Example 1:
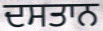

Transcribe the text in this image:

ਦਸਤਾਨ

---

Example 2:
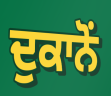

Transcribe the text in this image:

ਦੁਕਾਨੋਂ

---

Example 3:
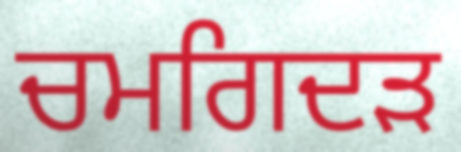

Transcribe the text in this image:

ਚਮਗਿਦੜ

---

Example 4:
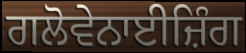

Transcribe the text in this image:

ਗਲੋਵੇਨਾਈਜ਼ਿੰਗ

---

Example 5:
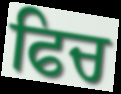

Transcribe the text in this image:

ਫਿਚ